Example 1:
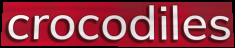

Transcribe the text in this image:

crocodiles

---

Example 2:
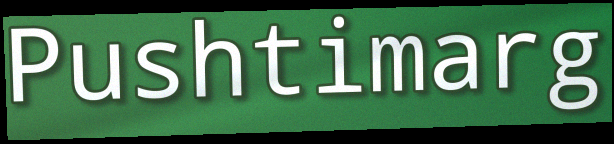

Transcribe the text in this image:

Pushtimarg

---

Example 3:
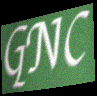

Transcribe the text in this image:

GNC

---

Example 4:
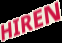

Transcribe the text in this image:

HIREN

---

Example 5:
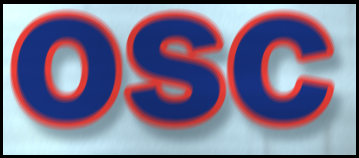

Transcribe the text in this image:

osc